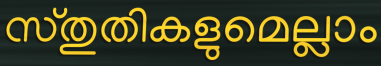
സ്തുതികളുമെല്ലാം